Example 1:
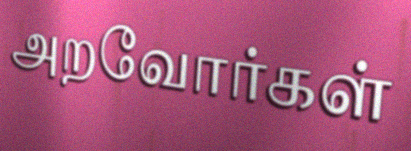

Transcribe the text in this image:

அறவோர்கள்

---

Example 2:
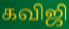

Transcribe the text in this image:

கவிஜி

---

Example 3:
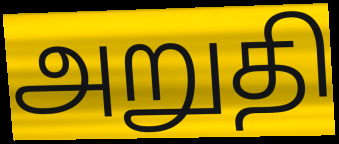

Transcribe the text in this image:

அறுதி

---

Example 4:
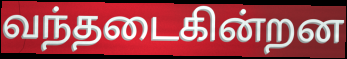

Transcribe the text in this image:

வந்தடைகின்றன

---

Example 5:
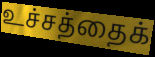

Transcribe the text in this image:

உச்சத்தைக்